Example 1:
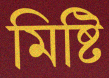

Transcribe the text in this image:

মিষ্টি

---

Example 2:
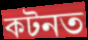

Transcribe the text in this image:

কটনত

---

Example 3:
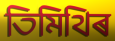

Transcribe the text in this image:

তিমিথিৰ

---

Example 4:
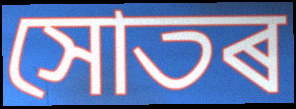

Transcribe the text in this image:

সোতৰ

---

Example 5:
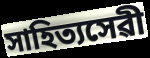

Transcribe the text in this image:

সাহিত্যসেৱী